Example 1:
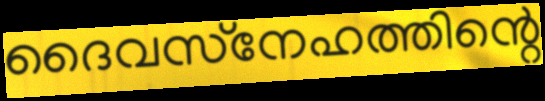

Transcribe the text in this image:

ദൈവസ്‌നേഹത്തിന്റെ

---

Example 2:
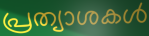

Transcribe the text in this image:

പ്രത്യാശകൾ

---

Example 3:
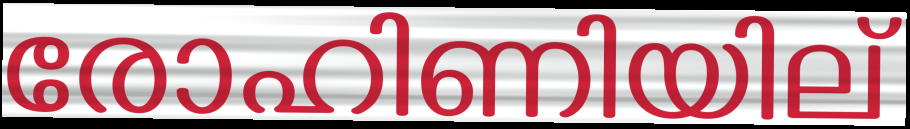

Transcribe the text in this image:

രോഹിണിയില്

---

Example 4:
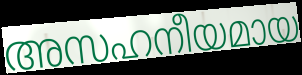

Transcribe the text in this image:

അസഹനീയമായ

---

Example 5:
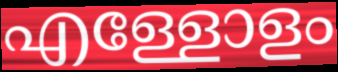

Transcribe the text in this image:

എള്ളോളം